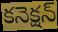
కనెక్షన్